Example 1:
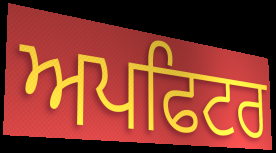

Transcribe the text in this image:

ਅਪਫਿਟਰ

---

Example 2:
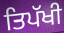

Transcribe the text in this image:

ਤਿਪੱਖੀ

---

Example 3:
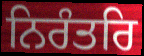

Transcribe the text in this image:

ਨਿਰੰਤਰਿ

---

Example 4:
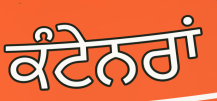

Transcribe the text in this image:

ਕੰਟੇਨਰਾਂ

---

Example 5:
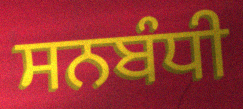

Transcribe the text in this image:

ਸਨਬੰਧੀ